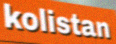
kolistan